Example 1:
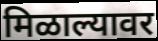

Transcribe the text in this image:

मिळाल्यावर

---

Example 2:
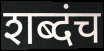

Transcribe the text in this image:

शब्दंच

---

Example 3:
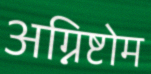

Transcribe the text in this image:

अग्निष्टोम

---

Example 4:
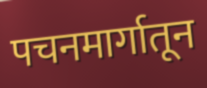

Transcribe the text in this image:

पचनमार्गातून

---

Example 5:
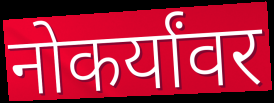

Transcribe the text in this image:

नोकर्यांवर